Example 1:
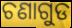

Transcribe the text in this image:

ଚଣାଗୁଡ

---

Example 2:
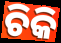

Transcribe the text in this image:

ଚିକି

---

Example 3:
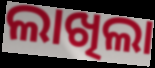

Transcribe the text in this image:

ଲାଖିଲା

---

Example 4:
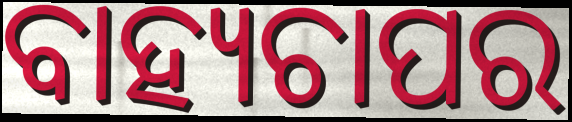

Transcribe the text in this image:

ବାହ୍ୟଚାପର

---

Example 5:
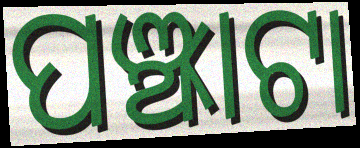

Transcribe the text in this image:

ପଞ୍ଝାଟା